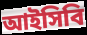
আইসিবি